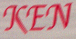
KEN